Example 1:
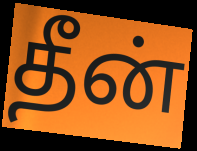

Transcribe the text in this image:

தீன்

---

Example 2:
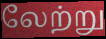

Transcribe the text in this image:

லேற்று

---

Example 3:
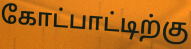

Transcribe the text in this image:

கோட்பாட்டிற்கு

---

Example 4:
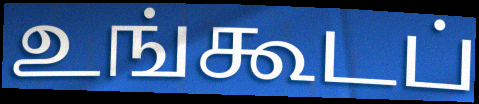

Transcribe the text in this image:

உங்கூடப்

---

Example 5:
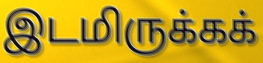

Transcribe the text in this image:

இடமிருக்கக்